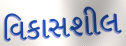
વિકાસશીલ